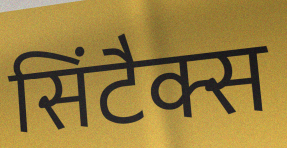
सिंटैक्स